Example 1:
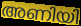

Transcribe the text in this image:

അണിയി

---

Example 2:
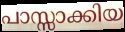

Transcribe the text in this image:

പാസ്സാക്കിയ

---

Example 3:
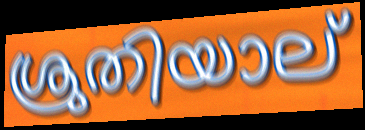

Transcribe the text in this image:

ശ്രുതിയാല്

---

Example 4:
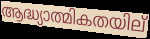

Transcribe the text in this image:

ആദ്ധ്യാത്മികതയില്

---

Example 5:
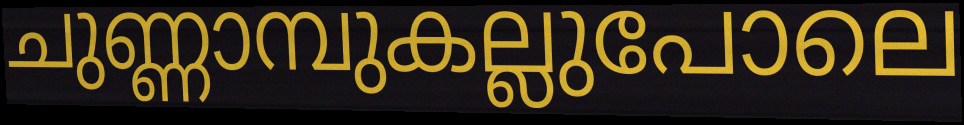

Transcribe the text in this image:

ചുണ്ണാമ്പുകല്ലുപോലെ